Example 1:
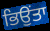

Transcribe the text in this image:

ਭਿਉਂਤਾ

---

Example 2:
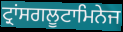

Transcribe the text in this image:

ਟ੍ਰਾਂਸਗਲੂਟਾਮਿਨੇਜ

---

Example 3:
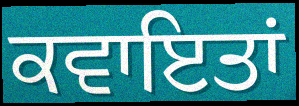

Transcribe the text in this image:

ਕਵਾਇਤਾਂ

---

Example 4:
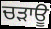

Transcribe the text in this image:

ਚੜਾਊ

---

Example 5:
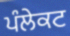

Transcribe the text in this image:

ਪੰਲੇਕਟ